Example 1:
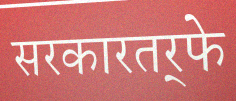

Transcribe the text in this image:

सरकारतर्फे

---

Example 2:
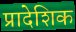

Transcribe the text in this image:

प्रादेशिक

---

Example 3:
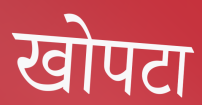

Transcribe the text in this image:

खोपटा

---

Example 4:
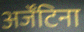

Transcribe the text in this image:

अर्जेंटिना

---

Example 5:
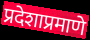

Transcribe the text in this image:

प्रदेशाप्रमाणे